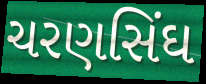
ચરણસિંઘ